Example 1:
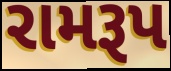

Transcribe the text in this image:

રામરૂપ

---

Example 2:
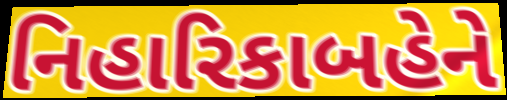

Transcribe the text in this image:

નિહારિકાબહેને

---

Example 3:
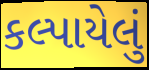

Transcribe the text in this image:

કલ્પાયેલું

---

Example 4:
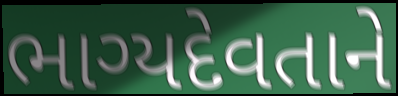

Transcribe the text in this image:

ભાગ્યદેવતાને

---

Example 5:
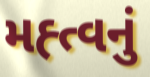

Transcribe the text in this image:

મહ્ત્વનું